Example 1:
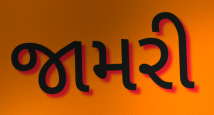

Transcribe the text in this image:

જામરી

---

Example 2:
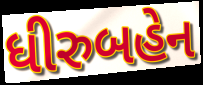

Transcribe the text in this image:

ધીરુબહેન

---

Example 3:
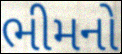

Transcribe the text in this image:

ભીમનો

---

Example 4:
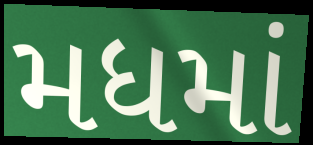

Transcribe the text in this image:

મધમાં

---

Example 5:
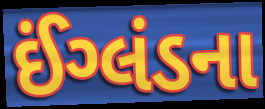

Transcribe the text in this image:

ઈંગ્લંડના